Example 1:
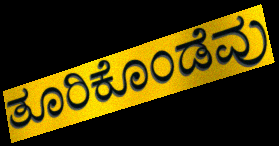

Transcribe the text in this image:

ತೂರಿಕೊಂಡೆವು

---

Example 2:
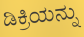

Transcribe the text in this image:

ಡಿಕ್ರಿಯನ್ನು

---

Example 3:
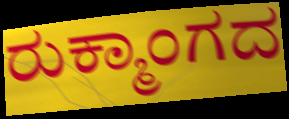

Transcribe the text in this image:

ರುಕ್ಮಾಂಗದ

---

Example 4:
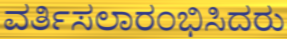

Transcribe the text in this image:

ವರ್ತಿಸಲಾರಂಭಿಸಿದರು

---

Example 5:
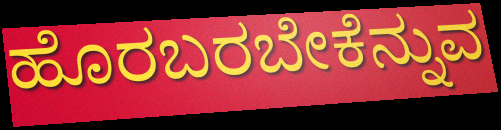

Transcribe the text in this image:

ಹೊರಬರಬೇಕೆನ್ನುವ